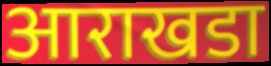
आराखडा